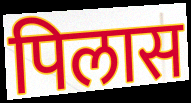
पिलास